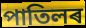
পাতিলৰ